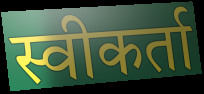
स्वीकर्ता